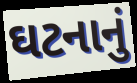
ઘટનાનું